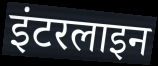
इंटरलाइन